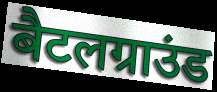
बैटलग्राउंड